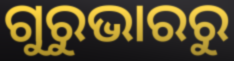
ଗୁରୁଭାରରୁ